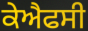
ਕੇਐਫਸੀ